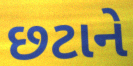
છટાને